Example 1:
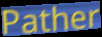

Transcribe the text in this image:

Pather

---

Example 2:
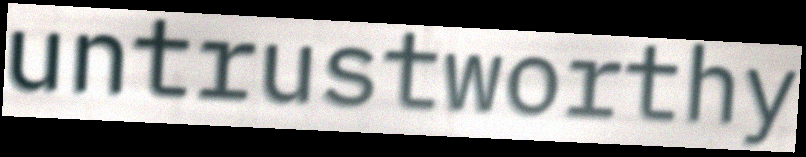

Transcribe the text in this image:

untrustworthy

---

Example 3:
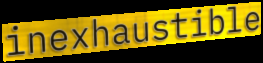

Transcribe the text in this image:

inexhaustible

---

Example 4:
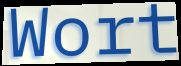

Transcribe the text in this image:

Wort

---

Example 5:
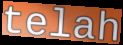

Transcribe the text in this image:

telah